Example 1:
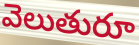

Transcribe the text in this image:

వెలుతురూ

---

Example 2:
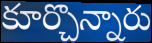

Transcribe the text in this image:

కూర్చొన్నారు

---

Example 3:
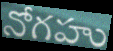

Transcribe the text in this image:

నోగహు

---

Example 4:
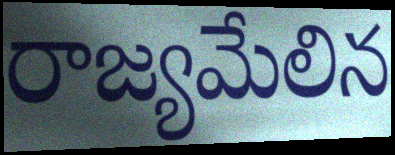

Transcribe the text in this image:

రాజ్యమేలిన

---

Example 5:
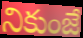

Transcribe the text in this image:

నికుంజే